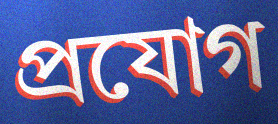
প্ৰযোগ